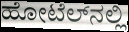
ಹೋಟೆಲ್‌ನಲ್ಲಿ